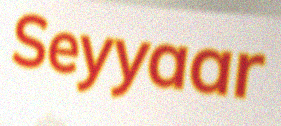
Seyyaar